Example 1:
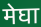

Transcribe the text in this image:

मेघा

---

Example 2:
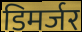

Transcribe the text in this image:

डिमर्जर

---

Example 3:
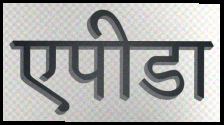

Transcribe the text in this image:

एपीडा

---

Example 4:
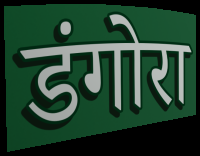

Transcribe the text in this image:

डंगोरा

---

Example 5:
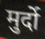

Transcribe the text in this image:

मुर्दो